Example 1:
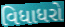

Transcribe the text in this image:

વિધાધરો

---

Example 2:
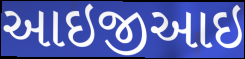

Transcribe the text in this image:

આઇજીઆઇ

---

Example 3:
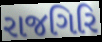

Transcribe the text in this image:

રાજગિરિ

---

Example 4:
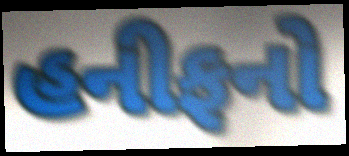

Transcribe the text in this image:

હનીફનો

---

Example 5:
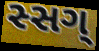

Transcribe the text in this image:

સ્સગ્